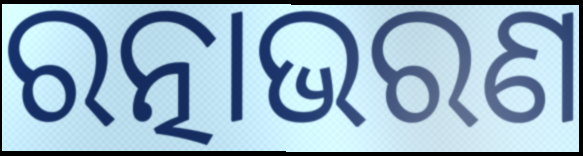
ରତ୍ନାଭରଣ